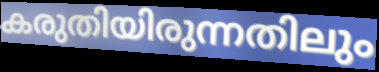
കരുതിയിരുന്നതിലും